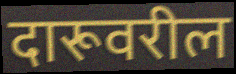
दारूवरील